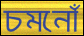
চমনোঁ